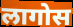
लागोस